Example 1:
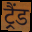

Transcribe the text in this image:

ट्रैंड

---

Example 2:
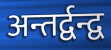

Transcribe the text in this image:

अन्तर्द्वन्द्व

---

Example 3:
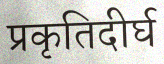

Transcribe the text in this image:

प्रकृतिदीर्घ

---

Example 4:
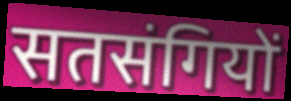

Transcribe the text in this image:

सतसंगियों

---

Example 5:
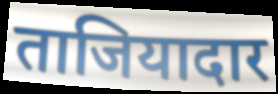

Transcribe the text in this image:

ताजियादार